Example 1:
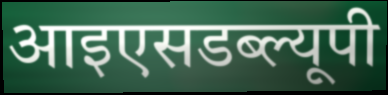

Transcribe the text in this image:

आइएसडब्ल्यूपी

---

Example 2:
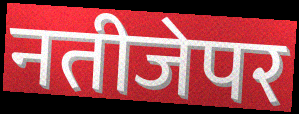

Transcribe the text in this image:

नतीजेपर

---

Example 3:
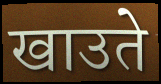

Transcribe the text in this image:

खाउते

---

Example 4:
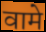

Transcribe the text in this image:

वामे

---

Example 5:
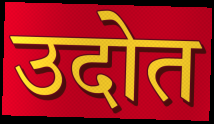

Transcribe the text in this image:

उदोत